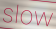
slow